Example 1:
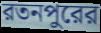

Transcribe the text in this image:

রতনপুরের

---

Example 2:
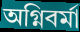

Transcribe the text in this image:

অগ্নিবর্মা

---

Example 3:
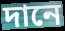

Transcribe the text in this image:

দানে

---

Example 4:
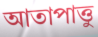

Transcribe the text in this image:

আতাপাত্তু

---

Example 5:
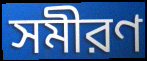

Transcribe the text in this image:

সমীরণ